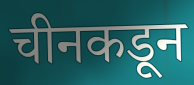
चीनकडून